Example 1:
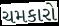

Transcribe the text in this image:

ચમકારો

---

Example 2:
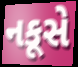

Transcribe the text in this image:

નકૂસે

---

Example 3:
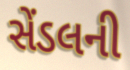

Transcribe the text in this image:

સેંડલની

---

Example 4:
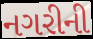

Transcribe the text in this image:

નગરીની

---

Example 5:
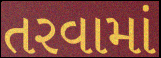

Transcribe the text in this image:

તરવામાં